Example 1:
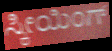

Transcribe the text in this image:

ಸ್ಕೀಯಿಂಗ್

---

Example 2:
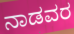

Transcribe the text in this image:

ನಾಡವರ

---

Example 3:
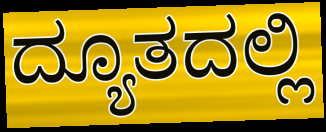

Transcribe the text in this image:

ದ್ಯೂತದಲ್ಲಿ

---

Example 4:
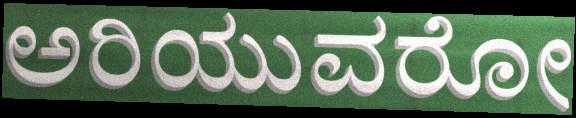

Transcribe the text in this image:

ಅರಿಯುವರೋ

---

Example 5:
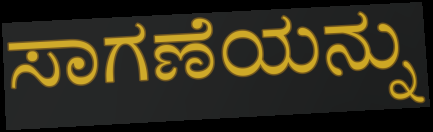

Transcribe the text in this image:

ಸಾಗಣೆಯನ್ನು